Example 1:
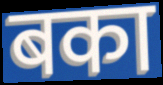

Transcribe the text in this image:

बका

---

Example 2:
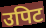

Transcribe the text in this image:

उपिट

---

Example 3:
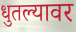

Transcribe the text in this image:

धुतल्यावर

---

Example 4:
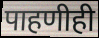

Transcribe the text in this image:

पाहणीही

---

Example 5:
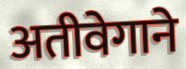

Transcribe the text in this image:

अतीवेगाने